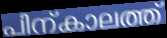
പിന്കാലത്ത്